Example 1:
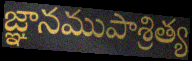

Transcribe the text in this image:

జ్ఞానముపాశ్రిత్య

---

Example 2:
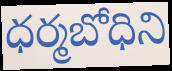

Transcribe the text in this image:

ధర్మబోధిని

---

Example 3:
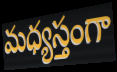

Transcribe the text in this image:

మధ్యస్తంగా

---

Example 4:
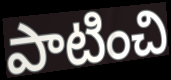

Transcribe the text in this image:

పాటించి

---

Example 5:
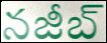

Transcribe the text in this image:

నజీబ్